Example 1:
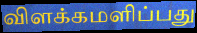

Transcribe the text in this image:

விளக்கமளிப்பது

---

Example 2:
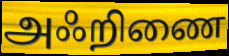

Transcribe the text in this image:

அஃறிணை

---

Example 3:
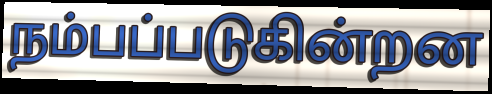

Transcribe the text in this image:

நம்பப்படுகின்றன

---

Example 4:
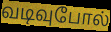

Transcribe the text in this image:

வடிவுபோல்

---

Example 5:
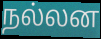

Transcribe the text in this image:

நல்லன